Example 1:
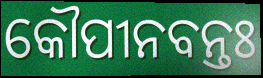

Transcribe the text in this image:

କୌପୀନବନ୍ତଃ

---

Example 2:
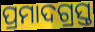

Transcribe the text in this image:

ପ୍ରମାଦଗ୍ରସ୍ତ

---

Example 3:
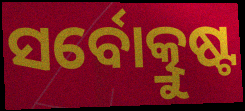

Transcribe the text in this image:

ସର୍ବୋତ୍କ୍ରୁଷ୍ଟ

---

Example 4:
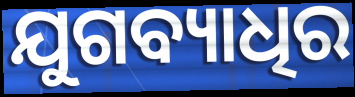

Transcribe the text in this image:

ଯୁଗବ୍ୟାଧିର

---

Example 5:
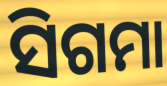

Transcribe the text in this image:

ସିଗମା